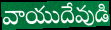
వాయుదేవుడి